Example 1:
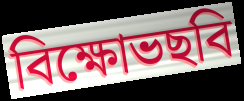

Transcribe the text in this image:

বিক্ষোভছবি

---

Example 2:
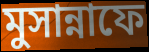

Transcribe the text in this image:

মুসান্নাফে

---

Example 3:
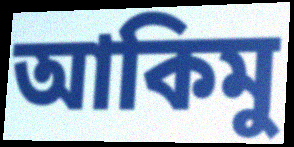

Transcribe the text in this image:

আকিমু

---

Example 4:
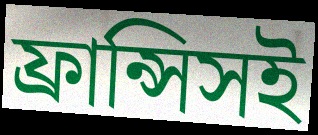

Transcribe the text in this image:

ফ্রান্সিসই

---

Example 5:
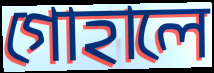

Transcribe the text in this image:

গোহালে